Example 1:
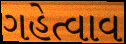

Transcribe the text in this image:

ગહેત્વાવ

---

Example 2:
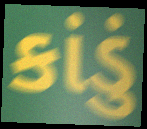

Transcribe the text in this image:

કાંડું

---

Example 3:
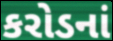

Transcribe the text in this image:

કરોડનાં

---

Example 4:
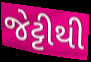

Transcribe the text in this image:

જેટ્ટીથી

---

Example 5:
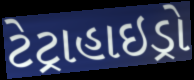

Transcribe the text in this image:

ટેટ્રાહાઇડ્રો